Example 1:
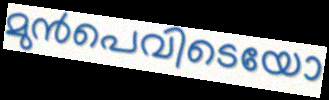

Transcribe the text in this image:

മുൻപെവിടെയോ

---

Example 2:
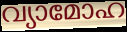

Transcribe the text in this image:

വ്യാമോഹ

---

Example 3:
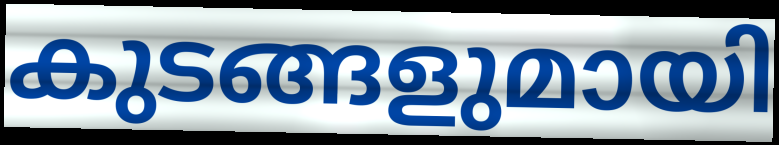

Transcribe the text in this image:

കുടങ്ങളുമായി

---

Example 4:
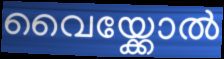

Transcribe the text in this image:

വൈയ്ക്കോൽ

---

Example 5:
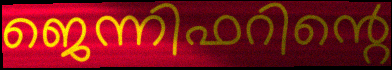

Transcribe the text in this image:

ജെന്നിഫറിന്റെ